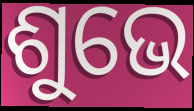
ଶୁଭେ